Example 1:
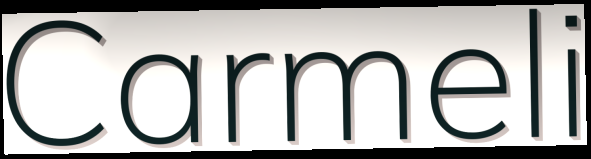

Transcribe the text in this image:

Carmeli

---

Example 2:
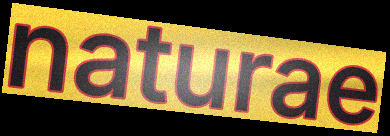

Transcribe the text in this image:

naturae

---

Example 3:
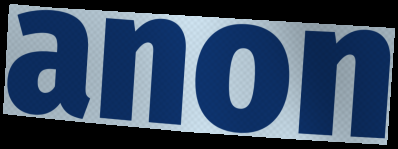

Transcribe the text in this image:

anon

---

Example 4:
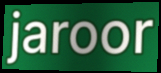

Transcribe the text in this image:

jaroor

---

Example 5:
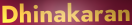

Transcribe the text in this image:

Dhinakaran